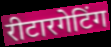
रीटारगेटिंग